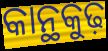
କାନ୍ଥକୁଢ଼